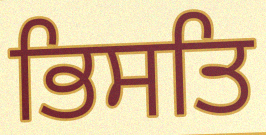
ਭਿਸਤਿ